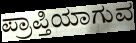
ಪ್ರಾಪ್ತಿಯಾಗುವ